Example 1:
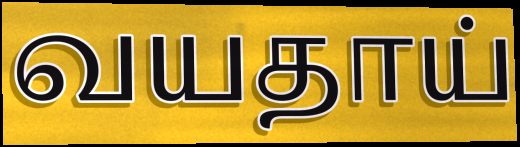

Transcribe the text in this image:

வயதாய்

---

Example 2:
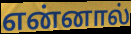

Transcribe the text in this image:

என்னால்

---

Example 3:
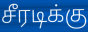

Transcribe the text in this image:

சீரடிக்கு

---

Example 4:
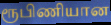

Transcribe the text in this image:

ரூபிணியான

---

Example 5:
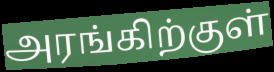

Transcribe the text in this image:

அரங்கிற்குள்